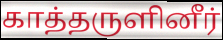
காத்தருளினீர்